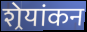
श्रेयांकन